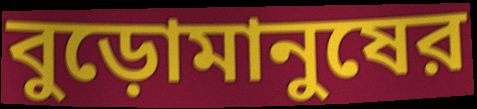
বুড়োমানুষের